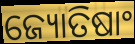
ଜ୍ୟୋତିଷାଂ